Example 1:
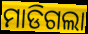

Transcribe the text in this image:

ମାଡିଗଲା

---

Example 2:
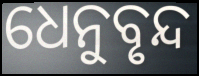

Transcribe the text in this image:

ଧେନୁବୃନ୍ଦ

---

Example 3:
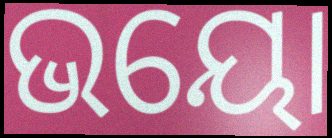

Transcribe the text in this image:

ଭୟୋ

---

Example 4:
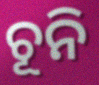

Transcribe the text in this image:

ଚୂନି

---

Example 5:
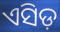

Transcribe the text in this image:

ଏସିଡ଼